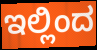
ಇಲ್ಲಿಂದ